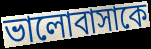
ভালোবাসাকে